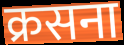
क्रसना